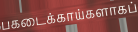
பகடைக்காய்களாகப்